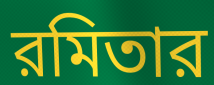
রমিতার